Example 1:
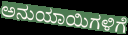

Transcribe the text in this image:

ಅನುಯಾಯಿಗಳಿಗೆ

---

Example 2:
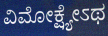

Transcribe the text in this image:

ವಿಮೋಕ್ಷ್ಯೇಽಥ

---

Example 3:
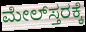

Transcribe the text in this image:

ಮೇಲ್‌ಸ್ತರಕ್ಕೆ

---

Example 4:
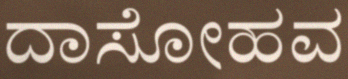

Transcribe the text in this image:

ದಾಸೋಹವ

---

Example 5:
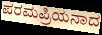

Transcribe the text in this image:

ಪರಮಪ್ರಿಯನಾದ